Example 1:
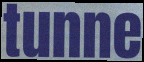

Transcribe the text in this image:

tunne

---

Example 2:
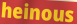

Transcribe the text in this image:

heinous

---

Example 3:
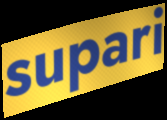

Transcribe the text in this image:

supari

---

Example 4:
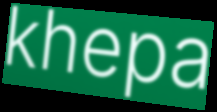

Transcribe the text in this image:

khepa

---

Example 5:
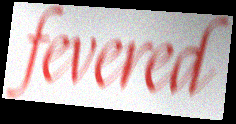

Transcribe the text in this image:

fevered